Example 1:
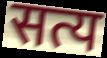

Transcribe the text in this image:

सत्य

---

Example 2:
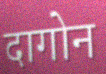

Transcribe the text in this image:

दागोन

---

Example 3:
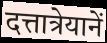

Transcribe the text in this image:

दत्तात्रेयानें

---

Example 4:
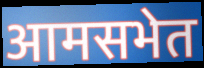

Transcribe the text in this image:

आमसभेत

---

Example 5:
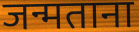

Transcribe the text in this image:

जन्मताना